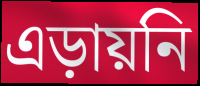
এড়ায়নি